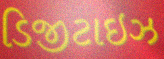
ડિજીટાઇઝ